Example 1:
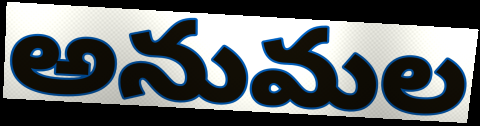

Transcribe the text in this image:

అనుమల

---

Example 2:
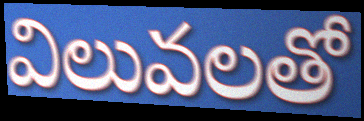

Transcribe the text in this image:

విలువలతో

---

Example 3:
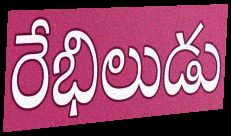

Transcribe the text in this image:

రేభిలుడు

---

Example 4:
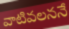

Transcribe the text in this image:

వాటివలననే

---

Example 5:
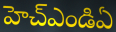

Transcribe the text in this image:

హెచ్ఎండిఏ